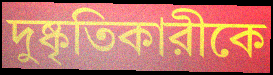
দুষ্কৃতিকারীকে